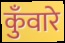
कुँवारे